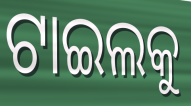
ଟାଇଲକୁ